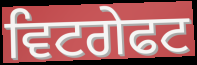
ਵਿਟਗੇਫਟ